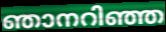
ഞാനറിഞ്ഞ